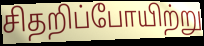
சிதறிப்போயிற்று